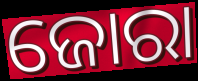
ଜୋରା